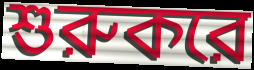
শুরুকরে